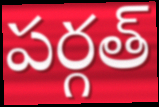
పర్గత్